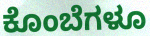
ಕೊಂಬೆಗಳೂ